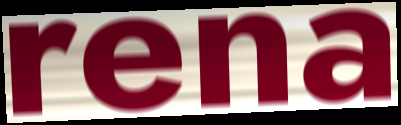
rena